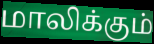
மாலிக்கும்